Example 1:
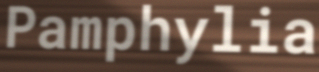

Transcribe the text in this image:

Pamphylia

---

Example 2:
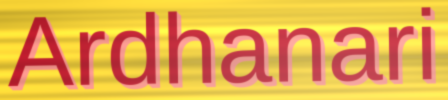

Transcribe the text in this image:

Ardhanari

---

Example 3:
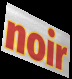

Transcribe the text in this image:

noir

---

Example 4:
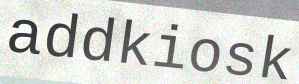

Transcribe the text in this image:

addkiosk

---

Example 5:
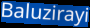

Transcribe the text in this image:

Baluzirayi